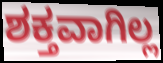
ಶಕ್ತವಾಗಿಲ್ಲ